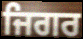
ਜਿਗਰ